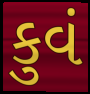
કુવં